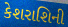
કેશરાશિની